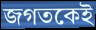
জগতকেই